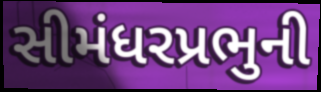
સીમંધરપ્રભુની